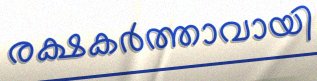
രക്ഷകർത്താവായി